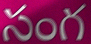
సంగ